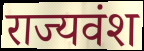
राज्यवंश